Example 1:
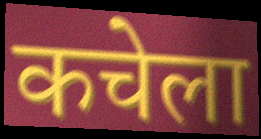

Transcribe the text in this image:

कचेला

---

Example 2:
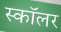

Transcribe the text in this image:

स्कॉलर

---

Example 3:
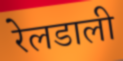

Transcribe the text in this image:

रेलडाली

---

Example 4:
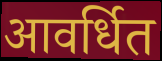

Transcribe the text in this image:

आवर्धित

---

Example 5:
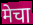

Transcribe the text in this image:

मेचा